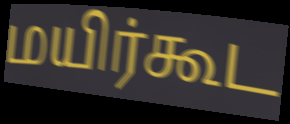
மயிர்கூட